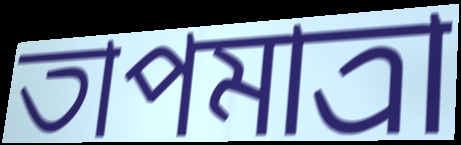
তাপমাত্ৰা